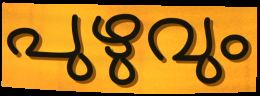
പുഴുവും